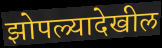
झोपल्यादेखील